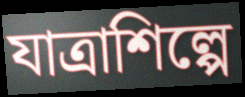
যাত্রাশিল্পে